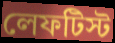
লেফটিস্ট